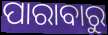
ପାରାବାରୁ